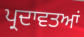
ਪ੍ਰਦਾਵਤਆਂ